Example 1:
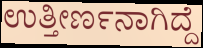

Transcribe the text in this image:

ಉತ್ತೀರ್ಣನಾಗಿದ್ದೆ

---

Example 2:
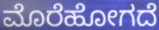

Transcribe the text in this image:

ಮೊರೆಹೋಗದೆ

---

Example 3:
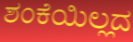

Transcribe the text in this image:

ಶಂಕೆಯಿಲ್ಲದ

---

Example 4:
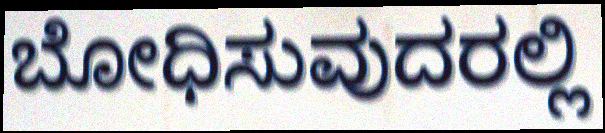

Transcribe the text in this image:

ಬೋಧಿಸುವುದರಲ್ಲಿ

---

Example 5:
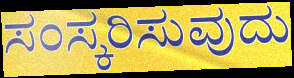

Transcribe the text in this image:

ಸಂಸ್ಕರಿಸುವುದು